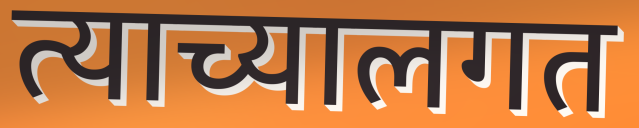
त्याच्यालगत